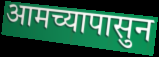
आमच्यापासुन